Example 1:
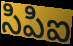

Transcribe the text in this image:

సిపిఐ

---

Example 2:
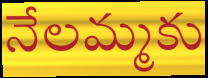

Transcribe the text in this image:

నేలమ్మకు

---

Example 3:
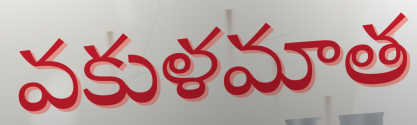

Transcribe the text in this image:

వకుళమాత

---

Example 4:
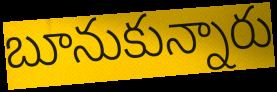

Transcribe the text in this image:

బూనుకున్నారు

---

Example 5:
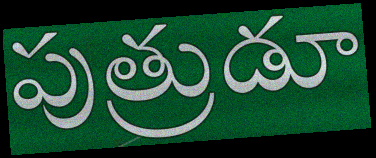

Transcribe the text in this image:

పుత్రుడూ